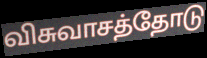
விசுவாசத்தோடு